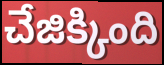
చేజిక్కింది